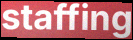
staffing